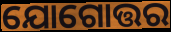
ଯୋଗୋତ୍ତର